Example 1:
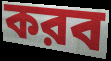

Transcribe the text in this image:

করব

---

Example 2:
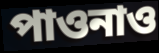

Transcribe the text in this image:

পাওনাও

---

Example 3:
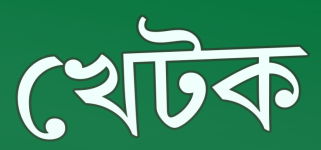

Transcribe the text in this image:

খেটক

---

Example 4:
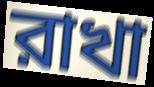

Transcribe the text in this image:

রাখা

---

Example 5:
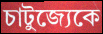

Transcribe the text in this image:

চাটুজ্যেকে